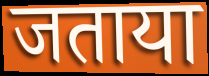
जताया